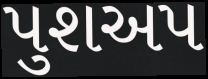
પુશઅપ